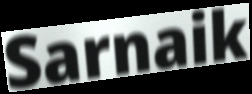
Sarnaik